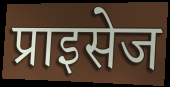
प्राइसेज